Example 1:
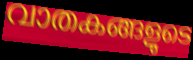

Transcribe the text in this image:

വാതകങ്ങളുടെ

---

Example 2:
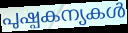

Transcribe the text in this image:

പുഷ്പകന്യകൾ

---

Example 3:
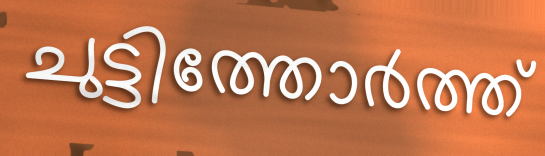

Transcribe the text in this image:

ചുട്ടിത്തോർത്ത്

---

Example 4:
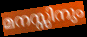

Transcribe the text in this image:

മനസ്സിനും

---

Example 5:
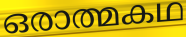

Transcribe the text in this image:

ഒരാത്മകഥ